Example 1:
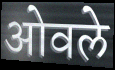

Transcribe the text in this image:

ओवले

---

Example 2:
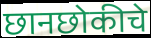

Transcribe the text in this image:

छानछोकीचे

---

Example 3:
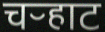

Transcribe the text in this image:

चऱ्हाट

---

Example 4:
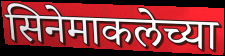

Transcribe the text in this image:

सिनेमाकलेच्या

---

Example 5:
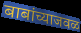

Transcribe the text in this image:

बाबांच्याजवळ